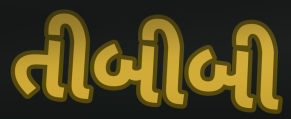
તીબીબી